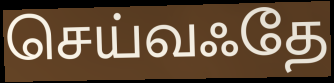
செய்வஃதே